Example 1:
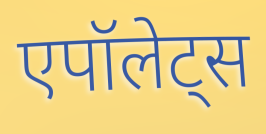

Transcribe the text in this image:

एपॉलेट्स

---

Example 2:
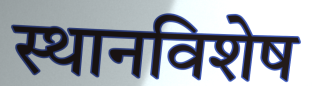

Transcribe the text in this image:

स्थानविशेष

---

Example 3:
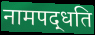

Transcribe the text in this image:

नामपद्धति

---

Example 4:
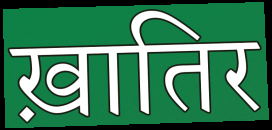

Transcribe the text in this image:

ख़ातिर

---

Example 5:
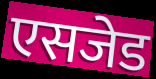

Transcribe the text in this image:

एसजेड